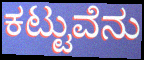
ಕಟ್ಟುವೆನು